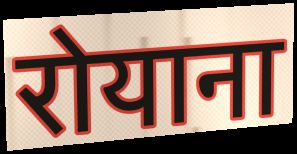
रोयाना